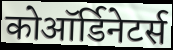
कोऑर्डिनेटर्स